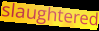
slaughtered